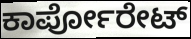
ಕಾರ್ಪೋರೇಟ್